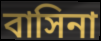
বাসিনা